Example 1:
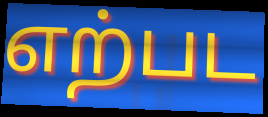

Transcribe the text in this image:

எற்பட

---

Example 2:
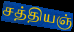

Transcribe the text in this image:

சத்தியஞ்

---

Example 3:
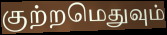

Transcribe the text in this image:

குற்றமெதுவும்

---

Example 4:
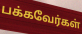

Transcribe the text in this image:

பக்கவேர்கள்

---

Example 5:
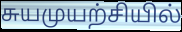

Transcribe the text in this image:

சுயமுயற்சியில்